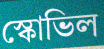
স্কোভিল